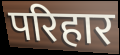
परिहार